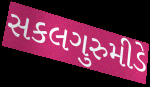
સકલગુરુમીડે